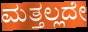
ಮತ್ತಲ್ಲದೇ